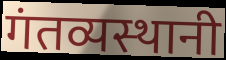
गंतव्यस्थानी